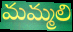
మమ్మలి